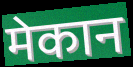
मेकान